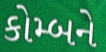
કોમ્બને